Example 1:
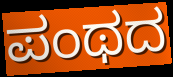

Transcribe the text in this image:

ಪಂಥದ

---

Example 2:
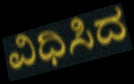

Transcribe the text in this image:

ವಿಧಿಸಿದ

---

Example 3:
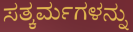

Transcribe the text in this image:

ಸತ್ಕರ್ಮಗಳನ್ನು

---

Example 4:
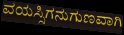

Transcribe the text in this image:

ವಯಸ್ಸಿಗನುಗುಣವಾಗಿ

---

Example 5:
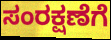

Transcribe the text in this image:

ಸಂರಕ್ಷಣೆಗೆ